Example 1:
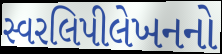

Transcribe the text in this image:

સ્વરલિપીલેખનનો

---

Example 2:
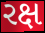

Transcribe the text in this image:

રક્ષ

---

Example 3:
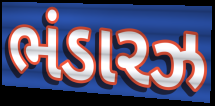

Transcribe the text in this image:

ભંડારઝ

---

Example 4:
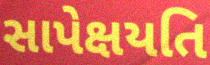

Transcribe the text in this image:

સાપેક્ષયતિ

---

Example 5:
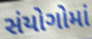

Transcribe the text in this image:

સંયોગોમાં